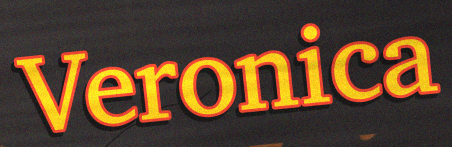
Veronica